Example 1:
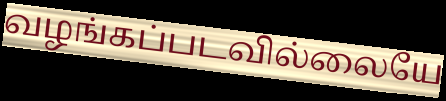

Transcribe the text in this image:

வழங்கப்படவில்லையே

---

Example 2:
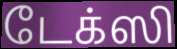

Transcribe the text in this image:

டேக்ஸி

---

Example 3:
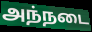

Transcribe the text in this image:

அந்நடை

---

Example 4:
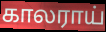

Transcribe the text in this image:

காலராய்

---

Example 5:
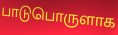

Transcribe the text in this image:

பாடுபொருளாக